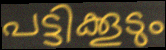
പട്ടിക്കൂടും